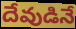
దేవుడినే